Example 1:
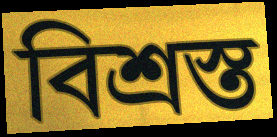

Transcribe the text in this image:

বিশ্রস্ত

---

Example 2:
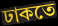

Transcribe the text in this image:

ঢাকতে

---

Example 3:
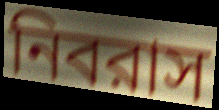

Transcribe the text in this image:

নিবরাস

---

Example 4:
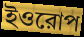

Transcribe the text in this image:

ইওরোপ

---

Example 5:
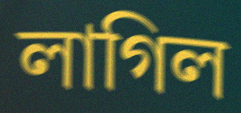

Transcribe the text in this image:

লাগিল